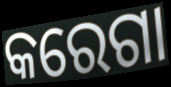
କରେଗା